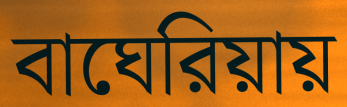
বাঘেরিয়ায়